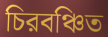
চিরবঞ্চিত